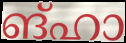
ങ്ഹാ